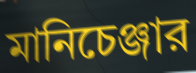
মানিচেঞ্জার